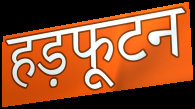
हड़फूटन